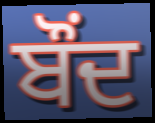
ਬੌਂਦ